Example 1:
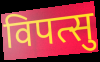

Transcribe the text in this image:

विपत्सु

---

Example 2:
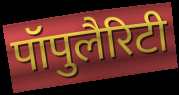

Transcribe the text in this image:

पॉपुलैरिटी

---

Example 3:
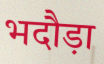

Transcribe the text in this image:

भदौड़ा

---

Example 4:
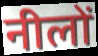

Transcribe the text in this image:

नीलों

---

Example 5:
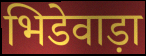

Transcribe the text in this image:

भिडेवाड़ा